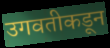
उगवतीकडून